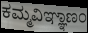
ಕಮ್ಮವಿಞ್ಞಾಣಂ